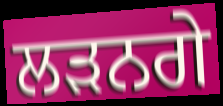
ਲੜਨਗੇ